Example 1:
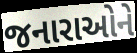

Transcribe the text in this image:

જનારાઓને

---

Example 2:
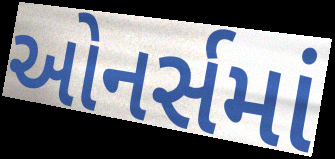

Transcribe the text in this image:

ઓનર્સમાં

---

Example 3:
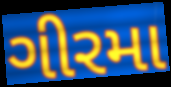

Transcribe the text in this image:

ગીરમા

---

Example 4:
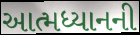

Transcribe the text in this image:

આત્મધ્યાનની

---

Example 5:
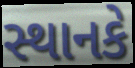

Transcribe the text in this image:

સ્થાનકે